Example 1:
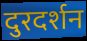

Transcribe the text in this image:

दुरदर्शन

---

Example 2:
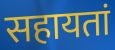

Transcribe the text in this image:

सहायतां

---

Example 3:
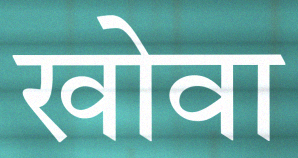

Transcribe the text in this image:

खोवा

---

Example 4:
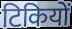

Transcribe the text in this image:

टिकियों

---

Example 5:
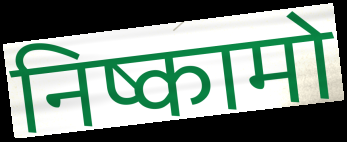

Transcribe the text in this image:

निष्कामो